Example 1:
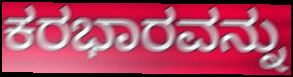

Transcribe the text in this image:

ಕರಭಾರವನ್ನು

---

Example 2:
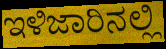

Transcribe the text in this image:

ಇಳಿಜಾರಿನಲ್ಲಿ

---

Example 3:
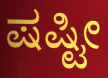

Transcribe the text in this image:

ಷಷ್ಟೀ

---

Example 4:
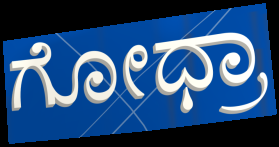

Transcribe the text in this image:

ಗೋಧ್ರಾ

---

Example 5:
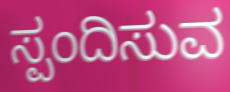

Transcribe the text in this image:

ಸ್ಪಂದಿಸುವ